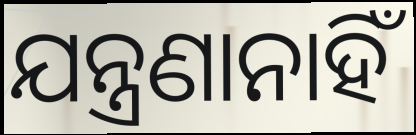
ଯନ୍ତ୍ରଣାନାହିଁ